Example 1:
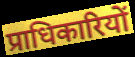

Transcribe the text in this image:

प्राधिकारियों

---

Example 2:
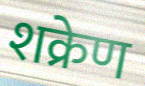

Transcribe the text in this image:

शक्रेण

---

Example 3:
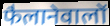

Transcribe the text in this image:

फैलानेवालों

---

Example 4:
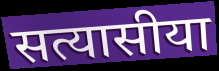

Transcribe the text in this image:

सत्यासीया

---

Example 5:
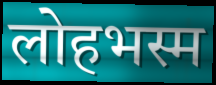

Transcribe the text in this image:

लोहभस्म